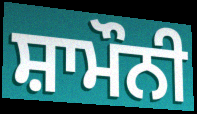
ਸ਼ਾਮੌਨੀ